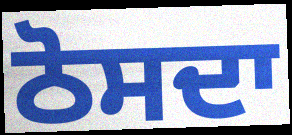
ਠੋਸਦਾ